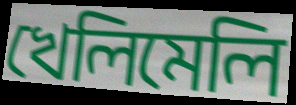
খেলিমেলি